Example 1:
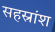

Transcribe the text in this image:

सहस्रांश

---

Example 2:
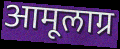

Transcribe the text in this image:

आमूलाग्र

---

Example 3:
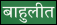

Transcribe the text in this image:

बाहुलीत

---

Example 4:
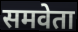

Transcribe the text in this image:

समवेता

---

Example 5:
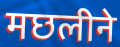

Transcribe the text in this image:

मछलीने